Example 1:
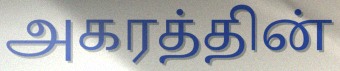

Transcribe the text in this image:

அகரத்தின்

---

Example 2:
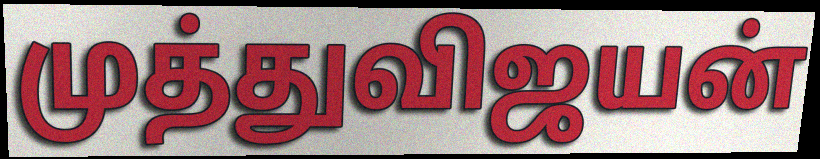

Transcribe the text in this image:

முத்துவிஜயன்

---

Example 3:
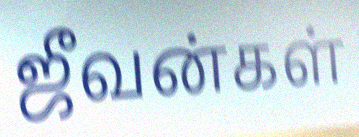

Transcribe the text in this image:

ஜீவன்கள்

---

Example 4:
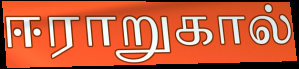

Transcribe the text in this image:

ஈராறுகால்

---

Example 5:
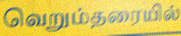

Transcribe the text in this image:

வெறும்தரையில்